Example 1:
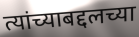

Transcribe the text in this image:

त्यांच्याबद्दलच्या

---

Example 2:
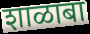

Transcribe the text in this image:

शाळाबा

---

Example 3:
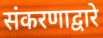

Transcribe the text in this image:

संकरणाद्वारे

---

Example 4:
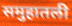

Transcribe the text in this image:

समुहातली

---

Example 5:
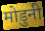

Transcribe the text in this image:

मोडुनी